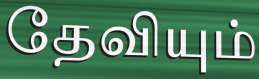
தேவியும்